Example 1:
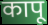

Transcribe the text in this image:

कापू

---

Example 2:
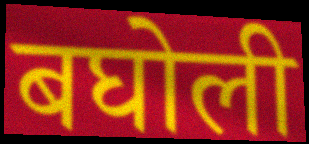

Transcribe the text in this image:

बघोली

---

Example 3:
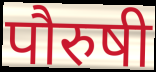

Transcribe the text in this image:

पौरुषी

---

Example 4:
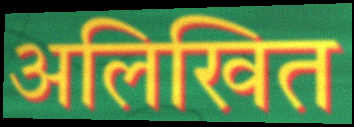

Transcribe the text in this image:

अलिखित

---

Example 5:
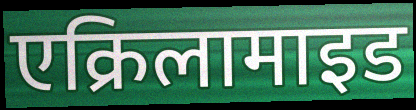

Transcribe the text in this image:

एक्रिलामाइड